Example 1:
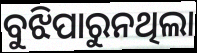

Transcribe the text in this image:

ବୁଝିପାରୁନଥିଲା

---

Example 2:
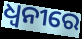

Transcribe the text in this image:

ଧ୍ଵନୀରେ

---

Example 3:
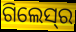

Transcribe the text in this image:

ଗିଲେସ୍‍ର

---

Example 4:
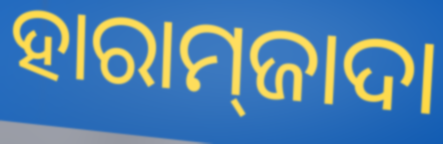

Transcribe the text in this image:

ହାରାମ୍‌ଜାଦା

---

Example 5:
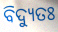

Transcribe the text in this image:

ବିଦ୍ୟୁତଃ